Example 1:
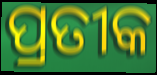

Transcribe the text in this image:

ପ୍ରତୀକ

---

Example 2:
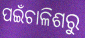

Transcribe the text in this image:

ପଇଁଚାଳିଶରୁ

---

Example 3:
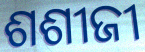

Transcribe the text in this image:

ଶଶୀଜୀ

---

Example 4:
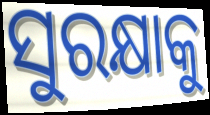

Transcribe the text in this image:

ସୁରକ୍ଷାକୁ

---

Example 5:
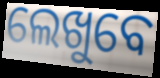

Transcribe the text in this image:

ଲେଖୁବେ